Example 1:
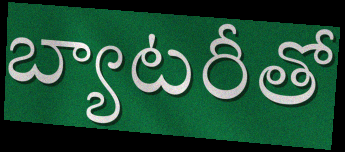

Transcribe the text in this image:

బ్యాటరీతో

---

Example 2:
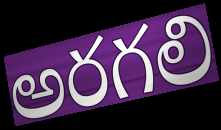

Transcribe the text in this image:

అరగలి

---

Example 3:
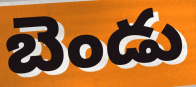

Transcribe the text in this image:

బెండు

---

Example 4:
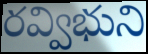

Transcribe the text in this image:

రవ్విభుని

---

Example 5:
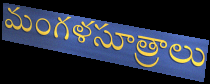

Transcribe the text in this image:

మంగళసూత్రాలు